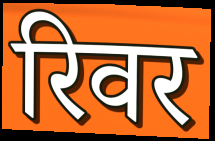
रिवर